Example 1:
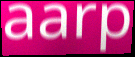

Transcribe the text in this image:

aarp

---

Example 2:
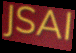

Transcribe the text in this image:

JSAI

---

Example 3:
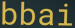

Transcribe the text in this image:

bbai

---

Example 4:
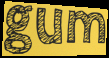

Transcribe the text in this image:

gum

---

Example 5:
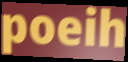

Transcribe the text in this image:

poeih